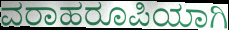
ವರಾಹರೂಪಿಯಾಗಿ